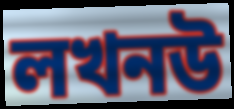
লখনউ